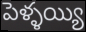
పెళ్ళయ్యి